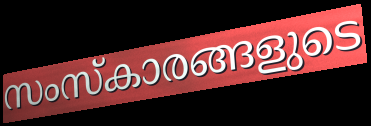
സംസ്കാരങ്ങളുടെ